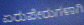
ಏರುಪೇರುಗಳಾಗಿ